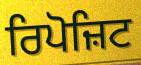
ਰਿਪੋਜ਼ਿਟ